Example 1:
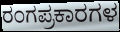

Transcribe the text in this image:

ರಂಗಪ್ರಕಾರಗಳ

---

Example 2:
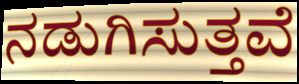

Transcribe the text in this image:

ನಡುಗಿಸುತ್ತವೆ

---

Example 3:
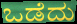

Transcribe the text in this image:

ಒಡೆದು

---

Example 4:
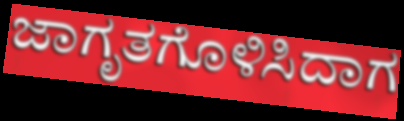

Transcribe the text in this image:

ಜಾಗೃತಗೊಳಿಸಿದಾಗ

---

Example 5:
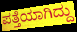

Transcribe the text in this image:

ಪತ್ತೆಯಾಗಿದ್ದು